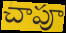
చాపూ